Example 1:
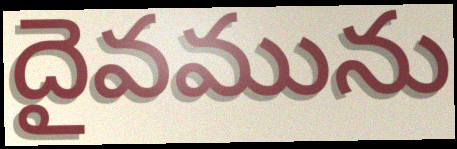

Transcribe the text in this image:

దైవమును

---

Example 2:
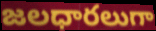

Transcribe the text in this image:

జలధారలుగా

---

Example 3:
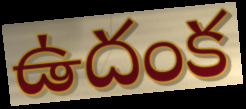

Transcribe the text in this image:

ఉదంక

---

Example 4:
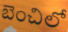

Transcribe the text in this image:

బెంచిలో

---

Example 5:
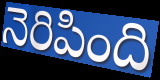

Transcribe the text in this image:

నెరిపింది